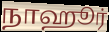
நாஹூர்